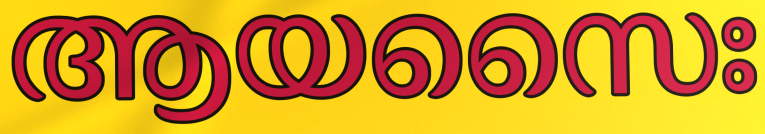
ആയസൈഃ